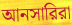
আনসারিরা